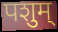
पशुम्